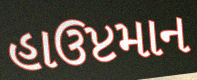
હાઉપ્ટમાન